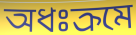
অধঃক্রমে